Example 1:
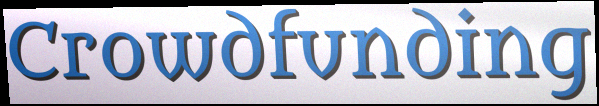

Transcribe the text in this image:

Crowdfunding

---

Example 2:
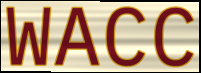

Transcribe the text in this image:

WACC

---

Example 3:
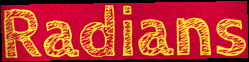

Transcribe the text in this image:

Radians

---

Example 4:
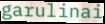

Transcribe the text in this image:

garulinai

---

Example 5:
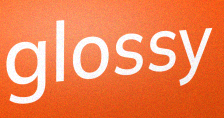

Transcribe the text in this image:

glossy